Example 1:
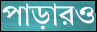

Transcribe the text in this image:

পাড়ারও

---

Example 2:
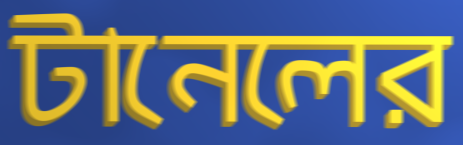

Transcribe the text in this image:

টানেলের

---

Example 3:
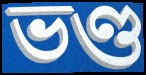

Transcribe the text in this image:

ভণ্ড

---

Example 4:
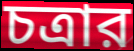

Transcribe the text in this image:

চত্রার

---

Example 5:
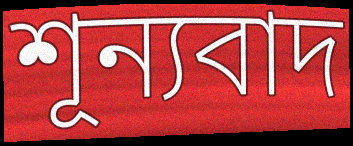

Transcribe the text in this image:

শূন্যবাদ